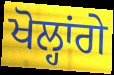
ਖੋਲ੍ਹਾਂਗੇ